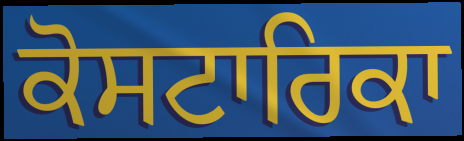
ਕੋਸਟਾਰਿਕਾ